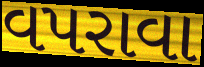
વપરાવા